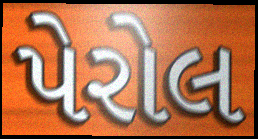
પેરોલ